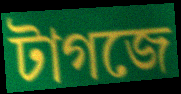
টাগজে